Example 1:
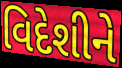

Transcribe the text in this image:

વિદેશીને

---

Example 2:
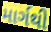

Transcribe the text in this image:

માર્ગથી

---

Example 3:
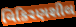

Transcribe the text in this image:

વિકિરણશીલ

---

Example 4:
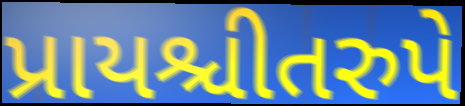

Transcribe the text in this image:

પ્રાયશ્ચીતરુપે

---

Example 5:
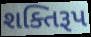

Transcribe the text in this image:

શક્તિરૂપ